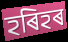
হৰিহৰ